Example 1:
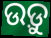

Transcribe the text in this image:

ଉଡ଼ୁ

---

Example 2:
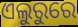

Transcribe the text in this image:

ଏଲୁରୁରେ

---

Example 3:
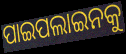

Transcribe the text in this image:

ପାଇପଲାଇନକୁ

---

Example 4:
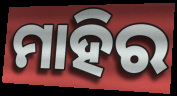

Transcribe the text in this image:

ମାହିର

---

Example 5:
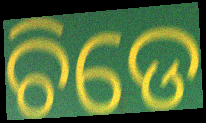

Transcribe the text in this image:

ଚିଡେ